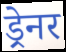
ड्रेनर